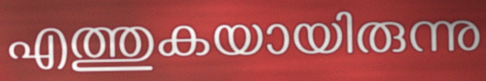
എത്തുകയായിരുന്നു